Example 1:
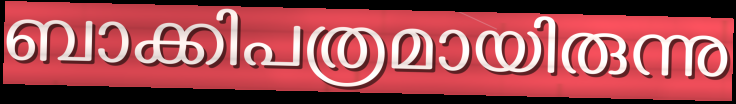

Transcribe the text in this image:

ബാക്കിപത്രമായിരുന്നു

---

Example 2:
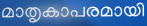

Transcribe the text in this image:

മാതൃകാപരമായി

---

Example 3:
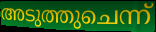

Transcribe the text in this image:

അടുത്തുചെന്ന്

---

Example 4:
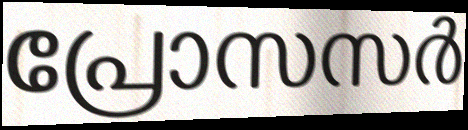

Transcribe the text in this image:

പ്രോസസർ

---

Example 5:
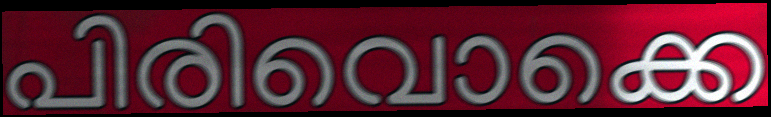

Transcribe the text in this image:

പിരിവൊക്കെ